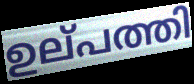
ഉല്‌പത്തി